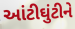
આંટીઘુંટીને